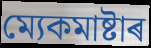
ম্যেকমাষ্টাৰ